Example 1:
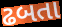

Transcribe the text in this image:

ઢબતા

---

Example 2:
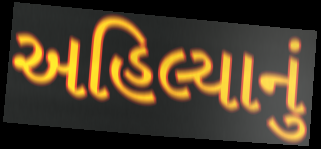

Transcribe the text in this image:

અહિલ્યાનું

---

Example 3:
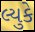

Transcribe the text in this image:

લ્યુકે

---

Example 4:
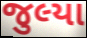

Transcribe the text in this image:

જુલ્યા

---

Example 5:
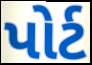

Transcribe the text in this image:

પોર્ટ